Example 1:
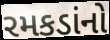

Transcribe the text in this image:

રમકડાંનો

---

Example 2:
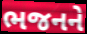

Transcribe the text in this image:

ભજનને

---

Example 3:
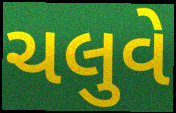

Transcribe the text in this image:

ચલુવે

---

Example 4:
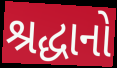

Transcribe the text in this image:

શ્રદ્ધાનો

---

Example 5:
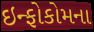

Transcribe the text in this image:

ઇન્ફોકોમના